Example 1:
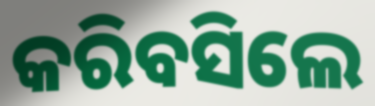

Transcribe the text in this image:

କରିବସିଲେ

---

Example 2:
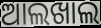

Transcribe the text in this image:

ଆଲଖାଲ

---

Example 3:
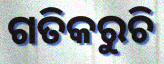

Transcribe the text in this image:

ଗତିକରୁଚି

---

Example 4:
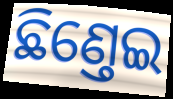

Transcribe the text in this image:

ଛିଣ୍ତେଇ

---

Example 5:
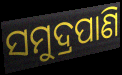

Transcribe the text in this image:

ସମୁଦ୍ରପାଣି